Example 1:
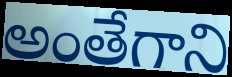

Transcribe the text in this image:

అంతేగాని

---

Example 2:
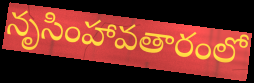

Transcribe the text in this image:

నృసింహావతారంలో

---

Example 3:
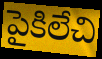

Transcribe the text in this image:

పైకిలేచి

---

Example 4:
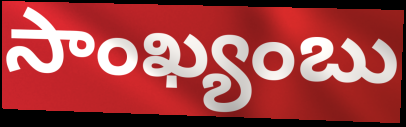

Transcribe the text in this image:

సాంఖ్యంబు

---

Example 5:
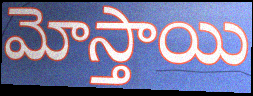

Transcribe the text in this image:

మోస్తాయి